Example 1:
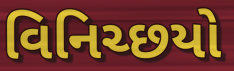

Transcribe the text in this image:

વિનિચ્છયો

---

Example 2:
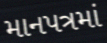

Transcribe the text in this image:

માનપત્રમાં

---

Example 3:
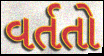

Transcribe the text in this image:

વર્તતો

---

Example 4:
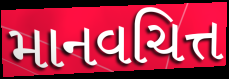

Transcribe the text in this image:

માનવચિત્ત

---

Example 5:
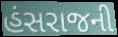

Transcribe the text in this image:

હંસરાજની